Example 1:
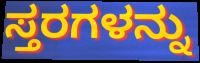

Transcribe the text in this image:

ಸ್ತರಗಳನ್ನು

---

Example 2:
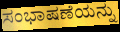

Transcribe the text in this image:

ಸಂಭಾಷಣೆಯನ್ನು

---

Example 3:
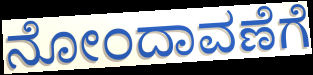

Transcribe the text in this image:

ನೋಂದಾವಣೆಗೆ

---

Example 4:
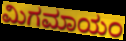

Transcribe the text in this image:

ಮಿಗಮಾಯಂ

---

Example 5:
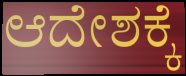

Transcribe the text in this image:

ಆದೇಶಕ್ಕೆ